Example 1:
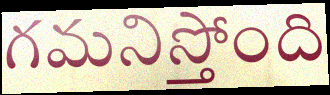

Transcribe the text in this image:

గమనిస్తోంది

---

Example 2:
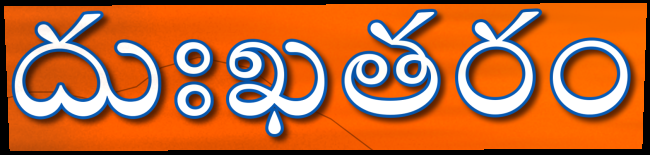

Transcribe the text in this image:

దుఃఖతరం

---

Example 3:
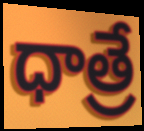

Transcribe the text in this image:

ధాత్రే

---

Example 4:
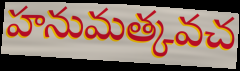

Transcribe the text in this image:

హనుమత్కవచ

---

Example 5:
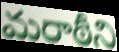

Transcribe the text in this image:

మరాఠీని